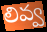
లివ్వ